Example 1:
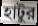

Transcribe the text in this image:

হাটুর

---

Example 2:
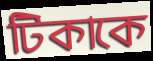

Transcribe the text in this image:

টিকাকে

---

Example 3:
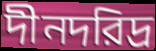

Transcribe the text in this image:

দীনদরিদ্র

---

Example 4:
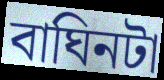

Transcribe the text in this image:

বাঘিনটা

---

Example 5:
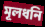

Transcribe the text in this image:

মূলধনি